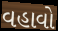
વહાવો